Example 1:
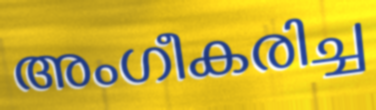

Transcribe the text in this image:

അംഗീകരിച്ച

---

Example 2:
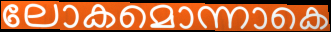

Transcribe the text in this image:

ലോകമൊന്നാകെ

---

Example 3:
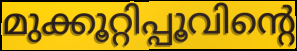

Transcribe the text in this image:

മുക്കൂറ്റിപ്പൂവിന്റെ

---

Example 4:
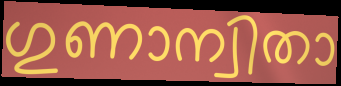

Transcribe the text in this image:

ഗുണാന്വിതാ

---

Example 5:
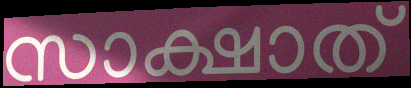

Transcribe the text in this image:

സാക്ഷാത്